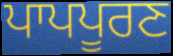
ਪਾਪਪੂਰਣ